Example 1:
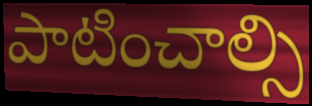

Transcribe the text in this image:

పాటించాల్సి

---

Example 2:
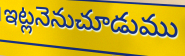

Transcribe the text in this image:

ఇట్లనెనుచూడుము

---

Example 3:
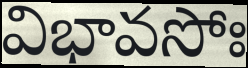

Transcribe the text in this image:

విభావసోః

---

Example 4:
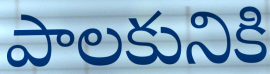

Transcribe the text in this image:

పాలకునికి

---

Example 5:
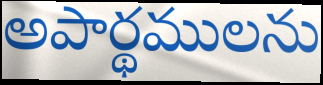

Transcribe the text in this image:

అపార్థములను